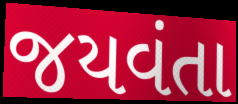
જયવંતા